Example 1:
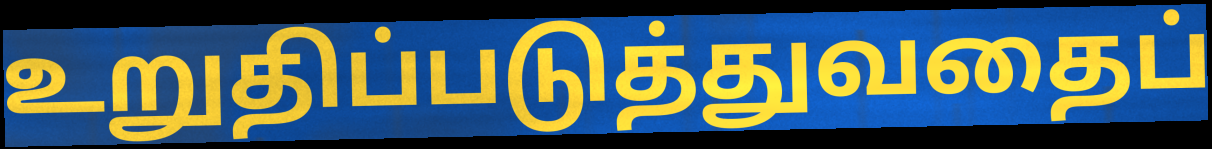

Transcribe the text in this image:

உறுதிப்படுத்துவதைப்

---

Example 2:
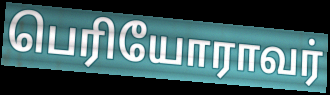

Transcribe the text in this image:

பெரியோராவர்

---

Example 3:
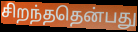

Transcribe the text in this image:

சிறந்ததென்பது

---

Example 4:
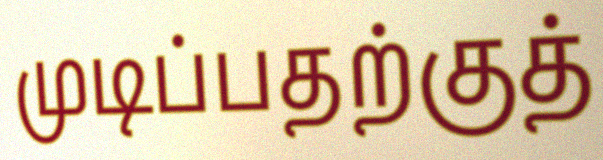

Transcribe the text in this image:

முடிப்பதற்குத்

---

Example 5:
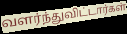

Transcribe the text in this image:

வளர்ந்துவிட்டார்கள்